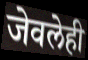
जेवलेही